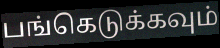
பங்கெடுக்கவும்